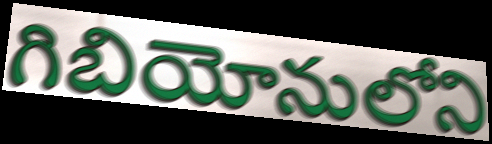
గిబియోనులోని